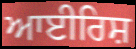
ਆਈਰਿਸ਼